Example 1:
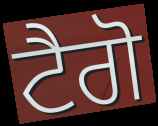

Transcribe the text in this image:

ਟੈਗੋ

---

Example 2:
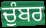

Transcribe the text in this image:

ਚੁੰਬਰ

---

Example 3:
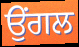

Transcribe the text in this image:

ਉੰਗਲ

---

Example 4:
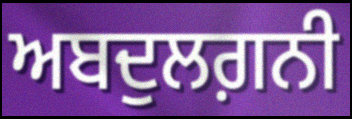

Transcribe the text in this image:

ਅਬਦੁਲਗ਼ਨੀ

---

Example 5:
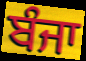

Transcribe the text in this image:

ਬੰਜਾ